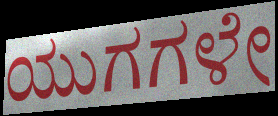
ಯುಗಗಳೇ